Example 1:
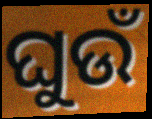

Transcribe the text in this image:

ଘୁଉଁ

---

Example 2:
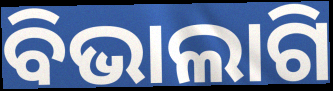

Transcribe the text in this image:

ବିଭାଲାଗି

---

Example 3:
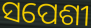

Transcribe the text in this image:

ସପେଶୀ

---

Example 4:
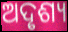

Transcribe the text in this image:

ଅଦୃଶ୍ୟ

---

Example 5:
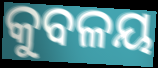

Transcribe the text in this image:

କୁବଳୟ